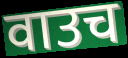
वाउच